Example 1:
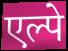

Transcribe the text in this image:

एल्पे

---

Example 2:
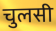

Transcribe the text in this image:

चुलसी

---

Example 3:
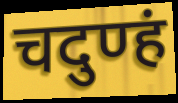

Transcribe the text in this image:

चदुण्हं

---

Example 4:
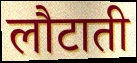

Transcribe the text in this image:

लौटाती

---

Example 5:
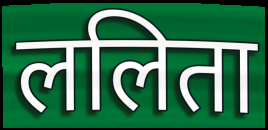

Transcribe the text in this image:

ललिता